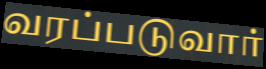
வரப்படுவார்